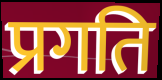
प्रगति